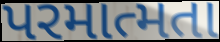
પરમાત્મતા